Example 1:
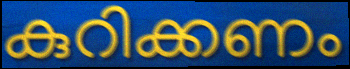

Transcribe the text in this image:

കുറിക്കണം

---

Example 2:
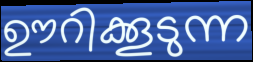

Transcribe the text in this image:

ഊറിക്കൂടുന്ന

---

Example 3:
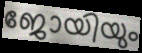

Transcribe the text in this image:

ജോയിയും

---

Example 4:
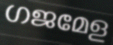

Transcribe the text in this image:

ഗജമേള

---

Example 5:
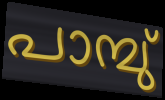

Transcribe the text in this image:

പാമ്പു്